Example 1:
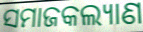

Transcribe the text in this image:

ସମାଜକଲ୍ୟାଣ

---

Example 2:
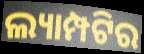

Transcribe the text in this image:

ଲ୍ୟାମ୍ପଟିର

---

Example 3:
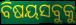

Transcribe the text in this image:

ବିଷୟସବୁକୁ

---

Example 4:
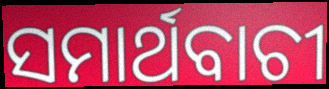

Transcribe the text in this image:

ସମାର୍ଥବାଚୀ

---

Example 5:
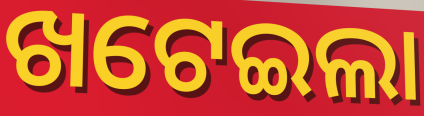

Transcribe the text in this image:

ଖଟେଇଲା